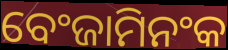
ବେଂଜାମିନଂକ